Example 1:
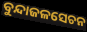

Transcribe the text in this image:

ବୁନ୍ଦାଜଳସେଚନ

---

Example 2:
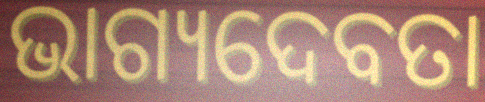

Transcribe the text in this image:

ଭାଗ୍ୟଦେବତା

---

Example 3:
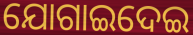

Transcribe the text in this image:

ଯୋଗାଇଦେଇ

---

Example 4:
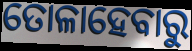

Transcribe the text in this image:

ତୋଳାହେବାରୁ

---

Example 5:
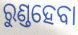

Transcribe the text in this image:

ରୁଣ୍ଡହେବା